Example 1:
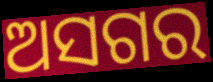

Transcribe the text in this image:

ଅସଗର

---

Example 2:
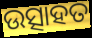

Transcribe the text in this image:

ଉତ୍ସାହତ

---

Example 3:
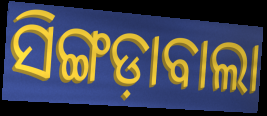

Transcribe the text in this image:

ସିଙ୍ଗଡ଼ାବାଲା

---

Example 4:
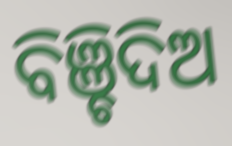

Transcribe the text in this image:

ବିଞ୍ଚିଦିଅ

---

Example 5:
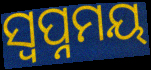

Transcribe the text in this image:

ସ୍ଵପ୍ନମୟ